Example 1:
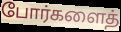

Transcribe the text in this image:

போர்களைத்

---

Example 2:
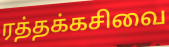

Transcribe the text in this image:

ரத்தக்கசிவை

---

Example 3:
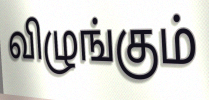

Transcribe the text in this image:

விழுங்கும்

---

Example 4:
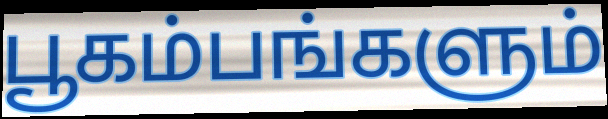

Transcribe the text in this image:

பூகம்பங்களும்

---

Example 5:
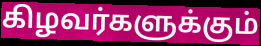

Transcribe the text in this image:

கிழவர்களுக்கும்